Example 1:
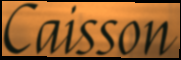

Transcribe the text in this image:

Caisson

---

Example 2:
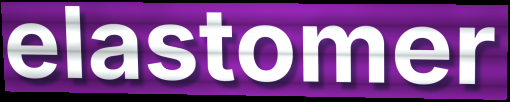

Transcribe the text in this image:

elastomer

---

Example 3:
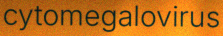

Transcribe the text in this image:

cytomegalovirus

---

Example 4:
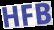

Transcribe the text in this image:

HFB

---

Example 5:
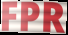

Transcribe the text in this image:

FPR